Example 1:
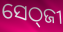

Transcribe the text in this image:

ସେଠ୍‌ଜୀ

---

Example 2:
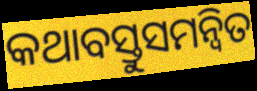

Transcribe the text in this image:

କଥାବସ୍ତୁସମନ୍ୱିତ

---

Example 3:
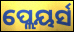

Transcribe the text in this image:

ପ୍ଲେୟର୍ସ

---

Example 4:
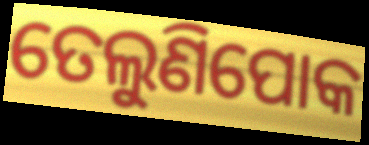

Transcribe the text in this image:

ତେଲୁଣିପୋକ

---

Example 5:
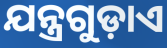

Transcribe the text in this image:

ଯନ୍ତ୍ରଗୁଡ଼ାଏ